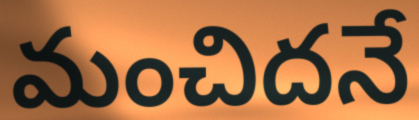
మంచిదనే